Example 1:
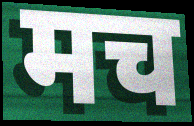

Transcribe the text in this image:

मच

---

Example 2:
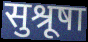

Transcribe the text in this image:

सुश्रूषा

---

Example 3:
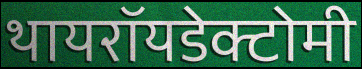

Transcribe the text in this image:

थायरॉयडेक्टोमी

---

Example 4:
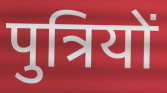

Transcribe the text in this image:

पुत्रियों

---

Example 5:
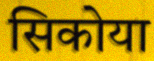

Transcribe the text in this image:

सिकोया